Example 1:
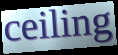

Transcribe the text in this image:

ceiling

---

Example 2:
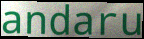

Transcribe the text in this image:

andaru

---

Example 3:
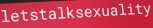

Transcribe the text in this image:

letstalksexuality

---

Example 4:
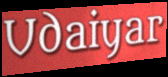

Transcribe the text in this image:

Udaiyar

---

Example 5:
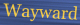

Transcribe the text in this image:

Wayward